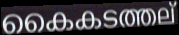
കൈകടത്തല്